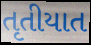
તૃતીયાત